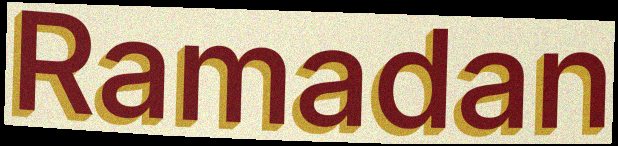
Ramadan